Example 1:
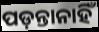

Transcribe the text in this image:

ପଡ଼ନ୍ତାନାହିଁ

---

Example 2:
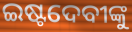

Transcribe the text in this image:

ଇଷ୍ଟଦେବୀଙ୍କୁ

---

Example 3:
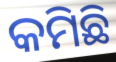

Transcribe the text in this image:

କମିଛି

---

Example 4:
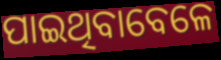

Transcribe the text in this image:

ପାଇଥିବାବେଳେ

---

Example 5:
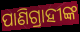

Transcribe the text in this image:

ପାଣିଗ୍ରାହୀଙ୍କ